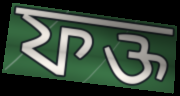
ফক্ত